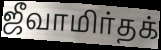
ஜீவாமிர்தக்